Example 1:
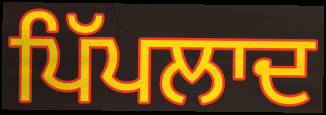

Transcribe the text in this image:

ਪਿੱਪਲਾਦ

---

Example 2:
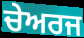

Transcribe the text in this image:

ਚੇਅਰਜ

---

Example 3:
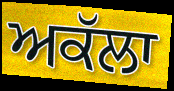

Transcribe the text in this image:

ਅਕੱਲਾ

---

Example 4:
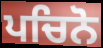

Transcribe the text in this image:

ਪਚਿਨੋ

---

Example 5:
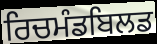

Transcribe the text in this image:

ਰਿਚਮੰਡਬਿਲਡ